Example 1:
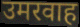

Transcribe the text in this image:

उमरवाह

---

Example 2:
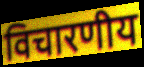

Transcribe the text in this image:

विचारणीय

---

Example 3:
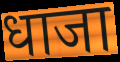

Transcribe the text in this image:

धाजा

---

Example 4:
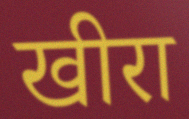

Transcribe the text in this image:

खीरा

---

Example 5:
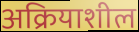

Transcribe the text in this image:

अक्रियाशील